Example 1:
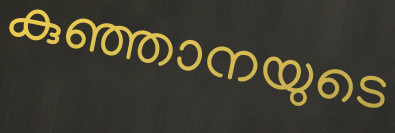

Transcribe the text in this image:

കുഞ്ഞാനയുടെ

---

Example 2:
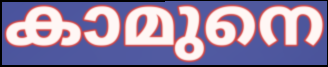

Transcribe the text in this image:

കാമുനെ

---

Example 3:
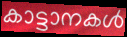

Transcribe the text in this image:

കാട്ടാനകൾ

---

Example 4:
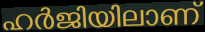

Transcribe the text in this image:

ഹർജിയിലാണ്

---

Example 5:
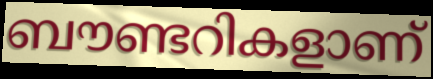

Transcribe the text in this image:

ബൗണ്ടറികളാണ്